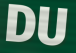
DU